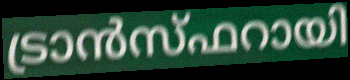
ട്രാൻസ്ഫറായി